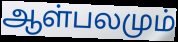
ஆள்பலமும்